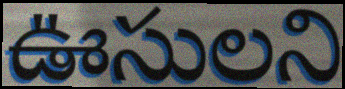
ఊసులని